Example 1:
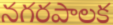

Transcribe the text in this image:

నగరపాలక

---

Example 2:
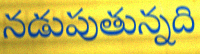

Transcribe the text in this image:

నడుపుతున్నది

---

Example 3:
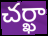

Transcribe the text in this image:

చర్ఖా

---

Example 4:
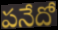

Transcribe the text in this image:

పనేదో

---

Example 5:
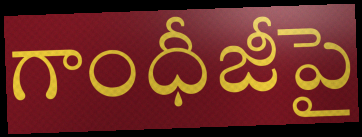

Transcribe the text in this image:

గాంధీజీపై